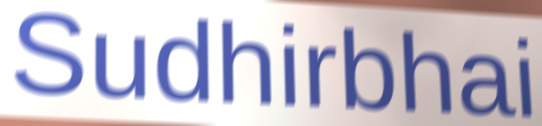
Sudhirbhai